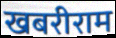
खबरीराम